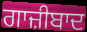
ਗਾਜ਼ੀਬਾਦ